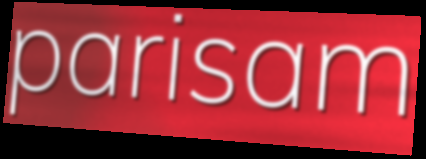
parisam